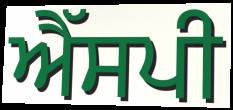
ਐੱਸਪੀ